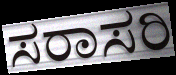
ಸರಾಸರಿ